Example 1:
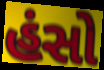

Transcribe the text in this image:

હંસો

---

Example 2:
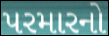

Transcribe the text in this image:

પરમારનો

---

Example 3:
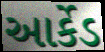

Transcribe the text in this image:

આર્કેડ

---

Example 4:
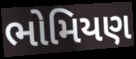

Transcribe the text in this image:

ભોમિયણ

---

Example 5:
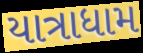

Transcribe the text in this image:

યાત્રાધામ